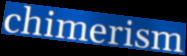
chimerism